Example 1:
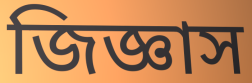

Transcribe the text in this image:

জিজ্ঞাস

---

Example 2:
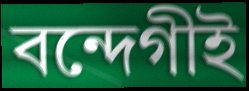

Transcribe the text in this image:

বন্দেগীই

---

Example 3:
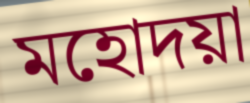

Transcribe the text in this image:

মহোদয়া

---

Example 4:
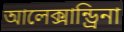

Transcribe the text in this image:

আলেক্সান্ড্রিনা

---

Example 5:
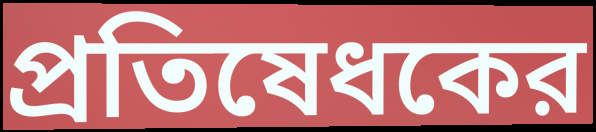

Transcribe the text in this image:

প্রতিষেধকের